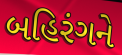
બહિરંગને